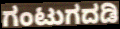
ಗಂಟುಗದಡಿ